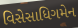
વિસેસાધિગમેન